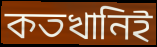
কতখানিই